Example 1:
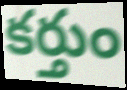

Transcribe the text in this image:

కర్తుం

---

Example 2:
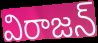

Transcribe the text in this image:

విరాజన్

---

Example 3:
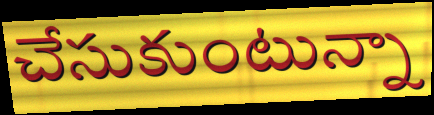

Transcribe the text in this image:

చేసుకుంటున్నా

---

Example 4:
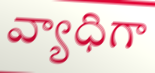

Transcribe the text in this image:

వ్యాధిగా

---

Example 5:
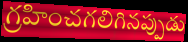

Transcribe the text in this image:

గ్రహించగలిగినప్పుడు